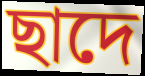
ছাদে